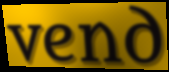
vend